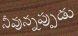
నీవున్నప్పుడు